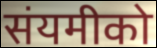
संयमीको